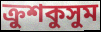
ক্রুশকুসুম